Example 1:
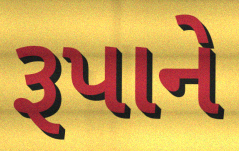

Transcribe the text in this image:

રૂપાને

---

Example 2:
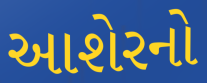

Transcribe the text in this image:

આશેરનો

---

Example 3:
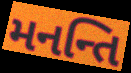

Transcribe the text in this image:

મનન્તિ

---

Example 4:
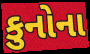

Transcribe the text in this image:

કુનોના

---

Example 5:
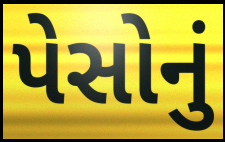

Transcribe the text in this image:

પેસોનું